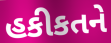
હકીકતને